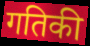
गतिकी